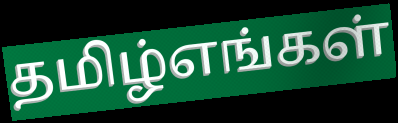
தமிழ்எங்கள்